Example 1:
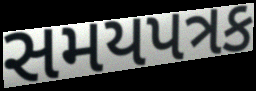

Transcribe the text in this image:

સમયપત્રક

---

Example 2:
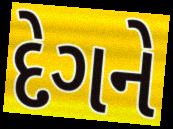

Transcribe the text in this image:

દેગને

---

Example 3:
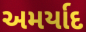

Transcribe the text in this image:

અમર્યાદ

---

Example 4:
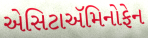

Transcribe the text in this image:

એસિટાઍમિનોફેન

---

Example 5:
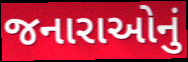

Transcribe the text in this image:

જનારાઓનું